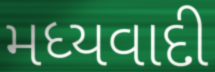
મધ્યવાદી